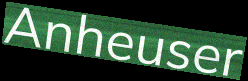
Anheuser